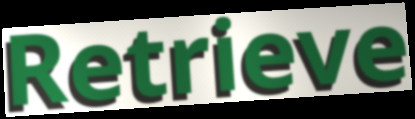
Retrieve